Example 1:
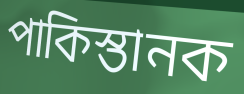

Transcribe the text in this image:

পাকিস্তানক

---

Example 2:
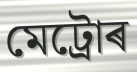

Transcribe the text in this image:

মেট্ৰোৰ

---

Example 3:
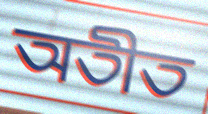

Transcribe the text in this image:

অতীত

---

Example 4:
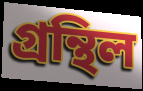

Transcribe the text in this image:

গ্ৰন্থিল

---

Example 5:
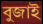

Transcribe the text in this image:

বুজাই